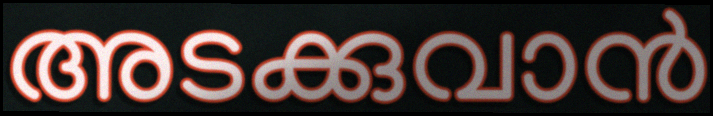
അടക്കുവാൻ